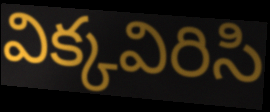
విక్కవిరిసి